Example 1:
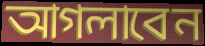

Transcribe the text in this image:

আগলাবেন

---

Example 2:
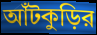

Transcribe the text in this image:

আঁটকুড়ির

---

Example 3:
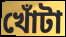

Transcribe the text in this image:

খোঁটা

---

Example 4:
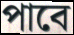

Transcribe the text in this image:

পাবে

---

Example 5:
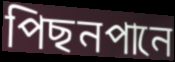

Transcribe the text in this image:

পিছনপানে